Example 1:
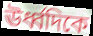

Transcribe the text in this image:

ঊর্ধ্বদিকে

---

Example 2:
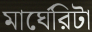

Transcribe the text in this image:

মার্ঘেরিটা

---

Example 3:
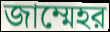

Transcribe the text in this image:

জাম্মেহর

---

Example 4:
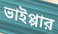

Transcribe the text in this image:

ভাইপ্পার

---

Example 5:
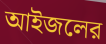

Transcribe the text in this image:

আইজলের